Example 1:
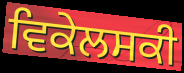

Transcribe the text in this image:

ਵਿਕੇਲਸਕੀ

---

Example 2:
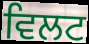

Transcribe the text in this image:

ਵਿਲਟ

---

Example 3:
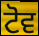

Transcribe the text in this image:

ਟੋਵ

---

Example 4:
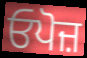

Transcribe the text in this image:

ਓਪੋਜ਼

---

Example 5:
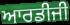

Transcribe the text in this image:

ਆਰਡੀਜੀ